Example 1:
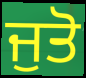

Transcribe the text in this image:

ਜੁਤੋ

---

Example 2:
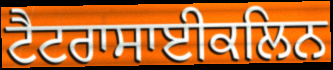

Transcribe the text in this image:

ਟੈਟਰਾਸਾਈਕਲਿਨ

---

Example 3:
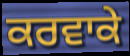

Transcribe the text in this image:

ਕਰਵਾਕੇ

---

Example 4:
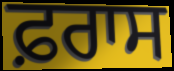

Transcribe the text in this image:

ਫ਼ਰਾਸ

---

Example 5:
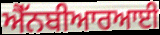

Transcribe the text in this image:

ਐੱਨਬੀਆਰਆਈ